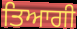
ਤਿਆਗੀ